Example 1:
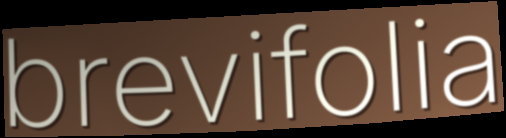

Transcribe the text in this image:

brevifolia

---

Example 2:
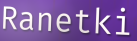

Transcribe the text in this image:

Ranetki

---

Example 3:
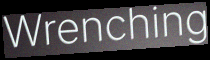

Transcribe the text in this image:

Wrenching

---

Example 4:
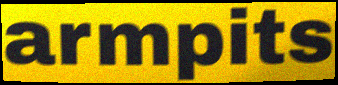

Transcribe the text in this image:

armpits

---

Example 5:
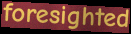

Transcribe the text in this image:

foresighted